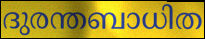
ദുരന്തബാധിത